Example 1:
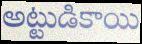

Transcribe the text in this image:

అట్టుడికాయి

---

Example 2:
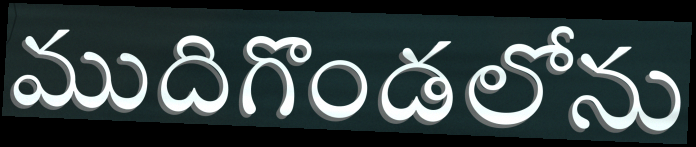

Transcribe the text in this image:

ముదిగొండలోను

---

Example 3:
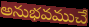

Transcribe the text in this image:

అనుభవముచే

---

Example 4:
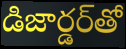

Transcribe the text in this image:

డిజార్డర్‌తో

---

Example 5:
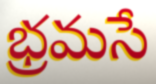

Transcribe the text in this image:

భ్రమసే